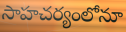
సాహచర్యంలోనూ